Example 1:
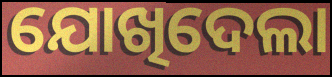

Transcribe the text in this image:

ଯୋଖିଦେଲା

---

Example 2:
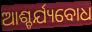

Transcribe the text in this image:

ଆଶ୍ଚର୍ଯ୍ୟବୋଧ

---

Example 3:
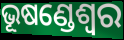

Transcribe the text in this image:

ଭୂଷଣ୍ଡେଶ୍ଵର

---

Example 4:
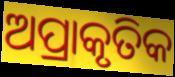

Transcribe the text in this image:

ଅପ୍ରାକୃତିକ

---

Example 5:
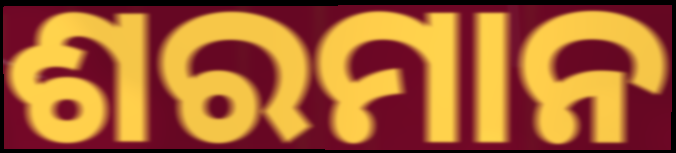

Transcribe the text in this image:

ଶରମାନ